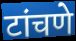
टांचणे